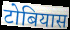
टोबियास